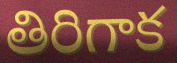
తిరిగాక